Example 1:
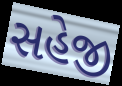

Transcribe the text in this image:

સહેજી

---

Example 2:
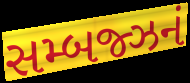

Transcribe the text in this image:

સમ્બજ્ઝનં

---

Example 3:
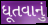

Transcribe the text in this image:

ધૂતવાનું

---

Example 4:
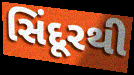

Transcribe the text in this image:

સિંદૂરથી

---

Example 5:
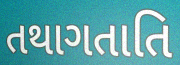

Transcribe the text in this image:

તથાગતાતિ